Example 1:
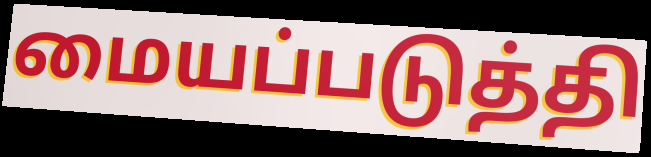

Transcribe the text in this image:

மையப்படுத்தி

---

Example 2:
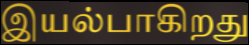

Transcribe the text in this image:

இயல்பாகிறது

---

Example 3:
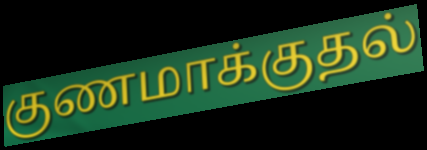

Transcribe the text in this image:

குணமாக்குதல்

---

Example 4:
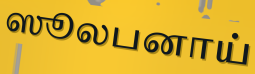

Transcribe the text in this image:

ஸூலபனாய்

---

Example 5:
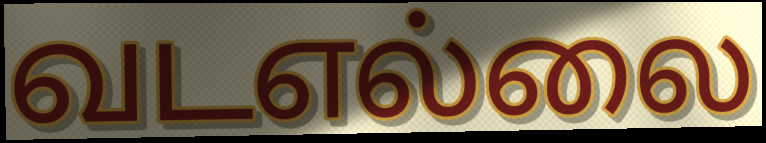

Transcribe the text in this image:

வடஎல்லை